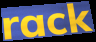
rack